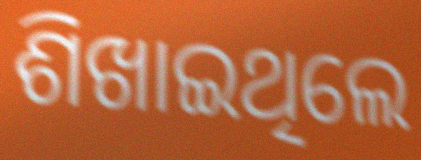
ଶିଖାଇଥିଲେ